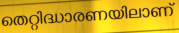
തെറ്റിദ്ധാരണയിലാണ്